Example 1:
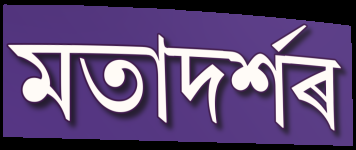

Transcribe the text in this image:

মতাদৰ্শৰ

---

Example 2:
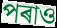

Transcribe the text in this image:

পৰাও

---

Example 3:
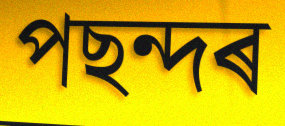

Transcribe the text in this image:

পছন্দৰ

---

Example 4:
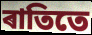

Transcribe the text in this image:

ৰাতিতে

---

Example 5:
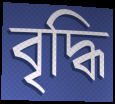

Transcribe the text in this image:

বৃদ্ধি